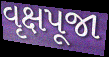
વૃક્ષપૂજા